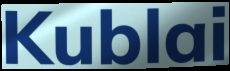
Kublai